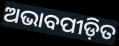
ଅଭାବପୀଡ଼ିତ